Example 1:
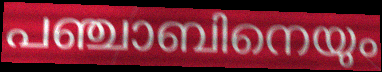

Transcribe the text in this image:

പഞ്ചാബിനെയും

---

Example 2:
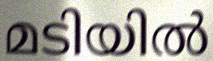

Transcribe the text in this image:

മടിയിൽ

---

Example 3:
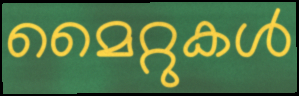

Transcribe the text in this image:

മൈറ്റുകൾ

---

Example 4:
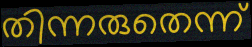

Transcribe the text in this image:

തിന്നരുതെന്ന്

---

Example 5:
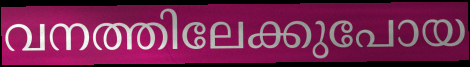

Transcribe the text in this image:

വനത്തിലേക്കുപോയ